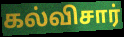
கல்விசார்